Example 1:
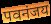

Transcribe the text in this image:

पवनंजय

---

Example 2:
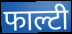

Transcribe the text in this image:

फाल्टी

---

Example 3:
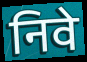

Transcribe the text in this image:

निवे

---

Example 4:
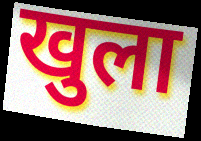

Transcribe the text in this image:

खुला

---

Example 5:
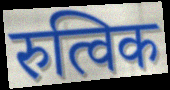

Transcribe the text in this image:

रुत्विक